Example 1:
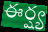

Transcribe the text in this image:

ఈర్ష్య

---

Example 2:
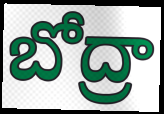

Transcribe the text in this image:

బోద్రా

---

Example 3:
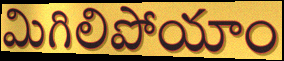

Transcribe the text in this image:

మిగిలిపోయాం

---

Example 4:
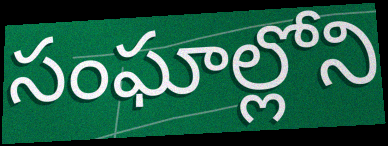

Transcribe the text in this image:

సంఘాల్లోని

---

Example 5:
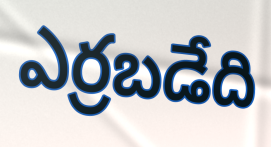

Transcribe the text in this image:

ఎర్రబడేది